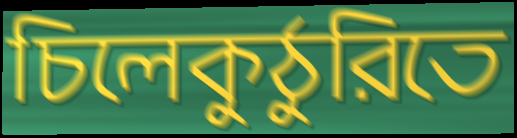
চিলেকুঠুরিতে